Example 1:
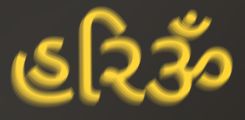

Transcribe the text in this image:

હરિૐ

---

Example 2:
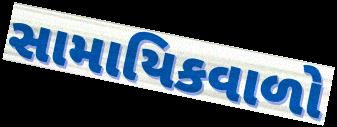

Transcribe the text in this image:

સામાયિકવાળો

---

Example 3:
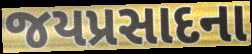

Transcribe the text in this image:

જયપ્રસાદના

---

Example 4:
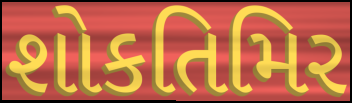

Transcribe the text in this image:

શોકતિમિર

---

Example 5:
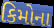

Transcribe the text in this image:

કિમોના